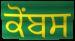
ਕੋਂਬਸ